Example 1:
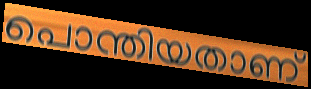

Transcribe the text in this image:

പൊന്തിയതാണ്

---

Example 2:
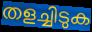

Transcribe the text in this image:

തളച്ചിടുക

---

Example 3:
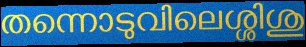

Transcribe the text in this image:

തന്നൊടുവിലെശ്ശിശു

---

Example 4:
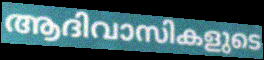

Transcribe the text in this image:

ആദിവാസികളുടെ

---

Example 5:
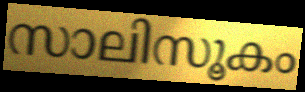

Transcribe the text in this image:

സാലിസൂകം